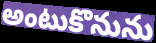
అంటుకొనును